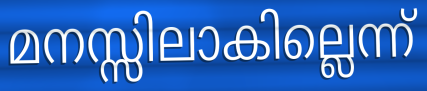
മനസ്സിലാകില്ലെന്ന്